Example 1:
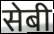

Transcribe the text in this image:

सेबी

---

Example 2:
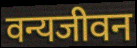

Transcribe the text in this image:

वन्यजीवन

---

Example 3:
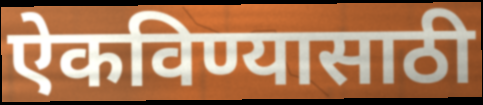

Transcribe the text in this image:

ऐकविण्यासाठी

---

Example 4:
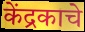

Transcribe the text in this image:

केंद्रकाचे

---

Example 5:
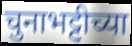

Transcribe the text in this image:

चुनाभट्टीच्या